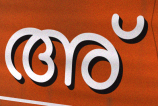
അ്